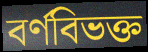
বর্ণবিভক্ত